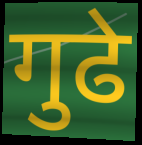
गुढे